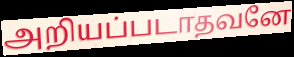
அறியப்படாதவனே